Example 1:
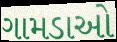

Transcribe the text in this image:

ગામડાઓ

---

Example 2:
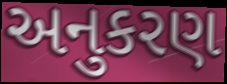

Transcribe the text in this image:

અનુકરણ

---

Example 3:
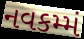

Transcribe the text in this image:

નવકમ્મં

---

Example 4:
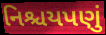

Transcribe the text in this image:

નિશ્ચયપણું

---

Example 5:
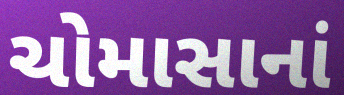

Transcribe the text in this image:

ચોમાસાનાં